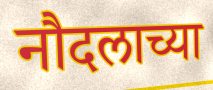
नौदलाच्या